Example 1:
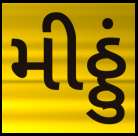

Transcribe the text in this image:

મીઠ્ઠું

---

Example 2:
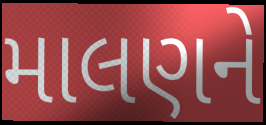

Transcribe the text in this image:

માલણને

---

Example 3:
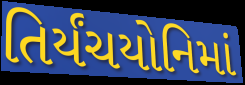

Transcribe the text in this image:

તિર્યંચયોનિમાં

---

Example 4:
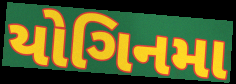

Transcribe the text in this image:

યોગિનમા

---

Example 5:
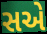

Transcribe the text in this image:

સએ